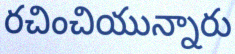
రచించియున్నారు